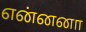
என்னனா